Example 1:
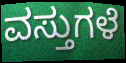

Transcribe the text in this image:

ವಸ್ತುಗಳೆ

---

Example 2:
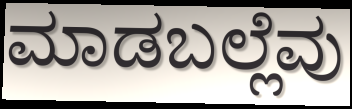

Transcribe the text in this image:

ಮಾಡಬಲ್ಲೆವು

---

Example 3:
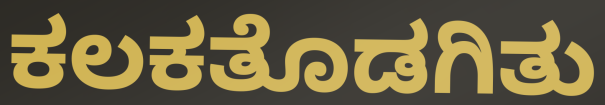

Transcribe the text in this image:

ಕಲಕತೊಡಗಿತು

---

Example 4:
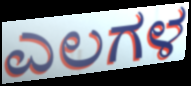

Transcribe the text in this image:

ಎಲಗಳ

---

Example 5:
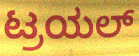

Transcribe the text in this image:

ಟ್ರಯಲ್